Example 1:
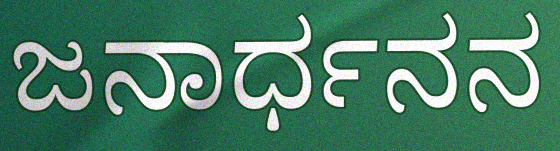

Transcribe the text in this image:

ಜನಾರ್ಧನನ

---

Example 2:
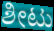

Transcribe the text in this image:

ಶೀಟು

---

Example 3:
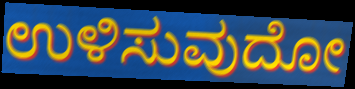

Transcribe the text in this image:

ಉಳಿಸುವುದೋ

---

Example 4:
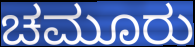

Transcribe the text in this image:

ಚಮೂರು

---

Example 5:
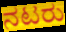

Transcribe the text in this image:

ನಟರು